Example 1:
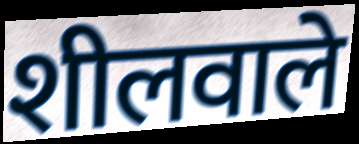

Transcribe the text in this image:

शीलवाले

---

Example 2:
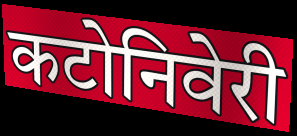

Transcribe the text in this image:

कटोनिवेरी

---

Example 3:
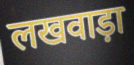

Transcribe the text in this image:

लखवाड़ा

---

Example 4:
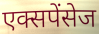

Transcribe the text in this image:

एक्सपेंसेज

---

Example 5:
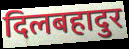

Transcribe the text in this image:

दिलबहादुर